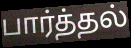
பார்த்தல்